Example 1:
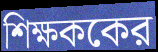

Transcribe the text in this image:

শিক্ষককের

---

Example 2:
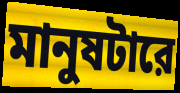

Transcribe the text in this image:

মানুষটারে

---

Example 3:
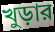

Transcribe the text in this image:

খুড়ার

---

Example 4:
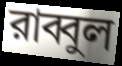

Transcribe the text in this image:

রাব্বুল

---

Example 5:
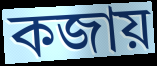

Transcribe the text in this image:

কজায়